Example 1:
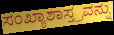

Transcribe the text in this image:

ಸಂಖ್ಯಾಶಾಸ್ತ್ರವನ್ನು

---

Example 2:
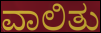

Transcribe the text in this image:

ವಾಲಿತು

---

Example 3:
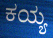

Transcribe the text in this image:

ಕಯ್ಯ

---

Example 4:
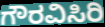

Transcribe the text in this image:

ಗೌರವಿಸಿರಿ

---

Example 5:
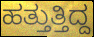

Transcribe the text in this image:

ಹತ್ತುತ್ತಿದ್ದ